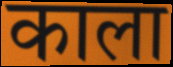
काला